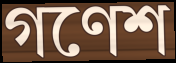
গণেশ